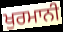
ਖੁਰਮਾਨੀ